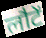
लौटें